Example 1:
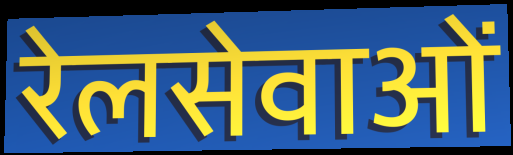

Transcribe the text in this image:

रेलसेवाओं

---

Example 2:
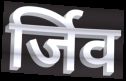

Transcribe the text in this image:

र्जिव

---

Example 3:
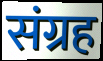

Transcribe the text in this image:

संग्रह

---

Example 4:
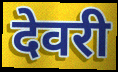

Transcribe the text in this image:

देवरी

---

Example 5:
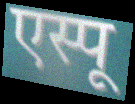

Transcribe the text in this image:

एस्पू